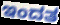
ಇಂದತ